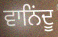
ਵਾਨਿਂਦੂ